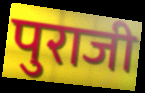
पुराजी